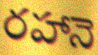
రహానె